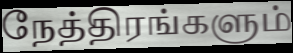
நேத்திரங்களும்